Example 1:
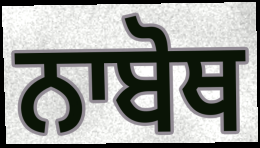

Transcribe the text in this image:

ਨਾਬੋਥ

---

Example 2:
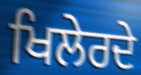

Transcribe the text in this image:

ਖਿਲੇਰਦੇ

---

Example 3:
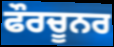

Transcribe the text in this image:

ਫੌਰਚੂਨਰ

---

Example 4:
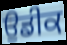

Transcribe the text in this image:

ਉਡੀਕ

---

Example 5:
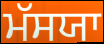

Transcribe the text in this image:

ਮੱਸਯਾ